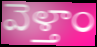
వెళ్తాం